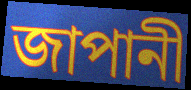
জাপানী